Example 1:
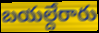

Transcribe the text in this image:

బయల్దేరారు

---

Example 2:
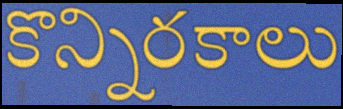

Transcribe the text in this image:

కొన్నిరకాలు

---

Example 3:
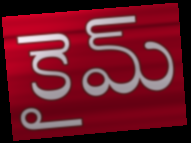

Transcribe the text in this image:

కైమ్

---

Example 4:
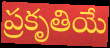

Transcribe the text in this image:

ప్రకృతియే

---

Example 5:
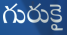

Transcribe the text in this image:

గురుకై